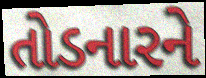
તોડનારને